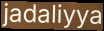
jadaliyya